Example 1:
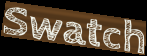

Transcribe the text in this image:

Swatch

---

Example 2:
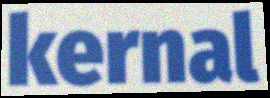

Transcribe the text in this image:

kernal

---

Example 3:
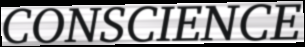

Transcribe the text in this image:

CONSCIENCE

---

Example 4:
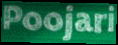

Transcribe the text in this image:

Poojari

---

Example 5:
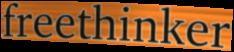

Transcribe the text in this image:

freethinker